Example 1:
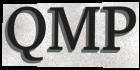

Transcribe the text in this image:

QMP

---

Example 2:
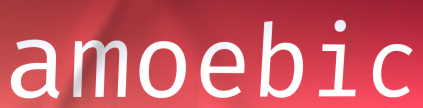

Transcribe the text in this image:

amoebic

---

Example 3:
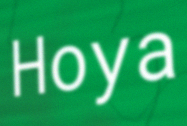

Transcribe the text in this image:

Hoya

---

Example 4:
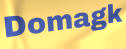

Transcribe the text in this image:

Domagk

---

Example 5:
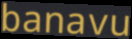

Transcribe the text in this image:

banavu